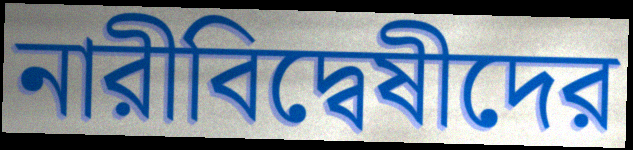
নারীবিদ্বেষীদের